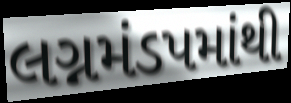
લગ્નમંડપમાંથી